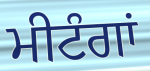
ਮੀਟੰਗਾਂ